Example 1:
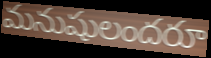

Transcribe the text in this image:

మనుషులందరూ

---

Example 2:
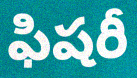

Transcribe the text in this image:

ఫిషరీ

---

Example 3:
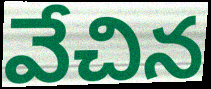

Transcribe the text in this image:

వేచిన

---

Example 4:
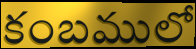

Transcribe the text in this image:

కంబములో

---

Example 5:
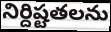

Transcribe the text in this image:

నిర్దిష్టతలను